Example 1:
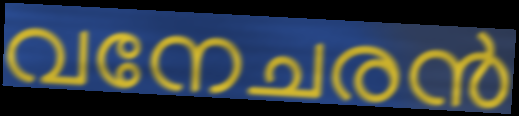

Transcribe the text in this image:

വനേചരൻ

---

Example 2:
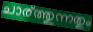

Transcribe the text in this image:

ചാര്ത്തുന്നതും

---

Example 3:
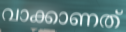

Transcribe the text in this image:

വാക്കാണത്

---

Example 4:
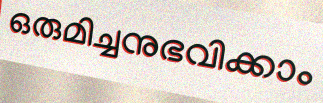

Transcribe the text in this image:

ഒരുമിച്ചനുഭവിക്കാം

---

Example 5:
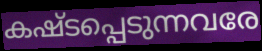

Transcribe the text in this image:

കഷ്ടപ്പെടുന്നവരേ